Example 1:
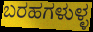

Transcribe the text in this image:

ಬರಹಗಳುಳ್ಳ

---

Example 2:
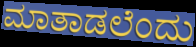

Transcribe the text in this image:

ಮಾತಾಡಲೆಂದು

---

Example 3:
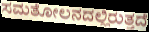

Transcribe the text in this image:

ಸಮತೋಲನದಲ್ಲಿರುತ್ತದೆ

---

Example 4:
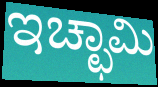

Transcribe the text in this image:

ಇಚ್ಛಾಮಿ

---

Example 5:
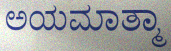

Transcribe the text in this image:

ಅಯಮಾತ್ಮಾ